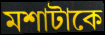
মশাটাকে